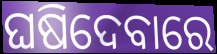
ଘଷିଦେବାରେ